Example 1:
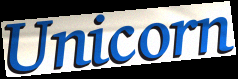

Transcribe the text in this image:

Unicorn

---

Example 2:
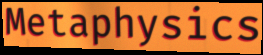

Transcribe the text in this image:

Metaphysics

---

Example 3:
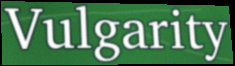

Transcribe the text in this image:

Vulgarity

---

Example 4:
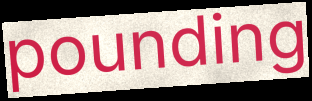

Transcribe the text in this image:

pounding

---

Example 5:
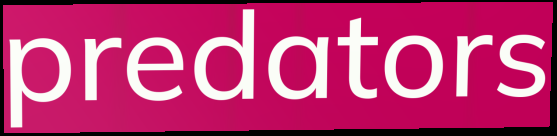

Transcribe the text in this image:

predators